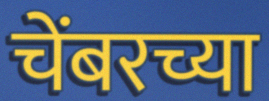
चेंबरच्या